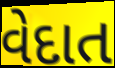
વેદાત